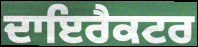
ਦਾਇਰੈਕਟਰ